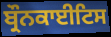
ਬ੍ਰੌਨਕਾਈਟਿਸ